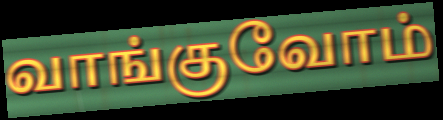
வாங்குவோம்